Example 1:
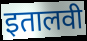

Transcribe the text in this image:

इतालवी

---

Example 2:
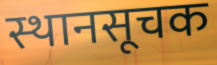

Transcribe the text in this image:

स्थानसूचक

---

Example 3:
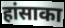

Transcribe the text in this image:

हांसाका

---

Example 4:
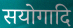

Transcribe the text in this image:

सयोगादि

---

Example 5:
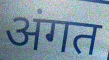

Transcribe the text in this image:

अंगत